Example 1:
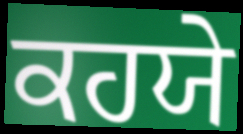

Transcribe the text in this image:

ਕਹਯੇ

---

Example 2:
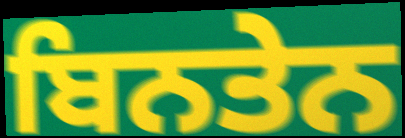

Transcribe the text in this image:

ਬਿਨਤੇਨ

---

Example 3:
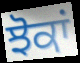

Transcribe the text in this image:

ਝੋਕਾਂ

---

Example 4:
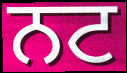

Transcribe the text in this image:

ਨਟ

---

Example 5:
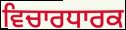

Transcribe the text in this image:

ਵਿਚਾਰਧਾਰਕ